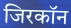
जिरकॉन